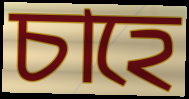
চাহে